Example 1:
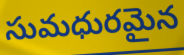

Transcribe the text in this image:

సుమధురమైన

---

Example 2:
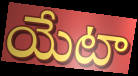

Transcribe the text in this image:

యేటా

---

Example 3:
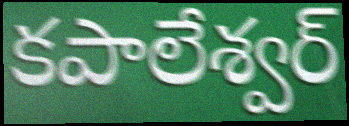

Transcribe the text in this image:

కపాలేశ్వర్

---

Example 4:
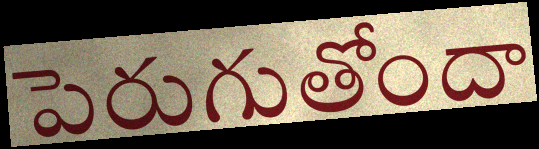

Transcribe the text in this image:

పెరుగుతోందా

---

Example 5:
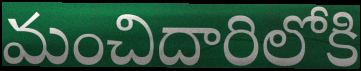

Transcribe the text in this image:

మంచిదారిలోకి